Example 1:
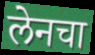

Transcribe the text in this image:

लेनचा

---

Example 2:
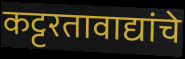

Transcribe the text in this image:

कट्टरतावाद्यांचे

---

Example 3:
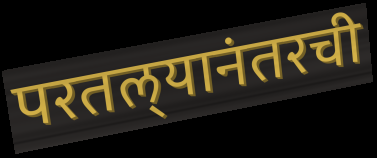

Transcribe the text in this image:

परतल्यानंतरची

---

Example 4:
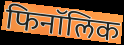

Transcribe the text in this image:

फिनॉलिक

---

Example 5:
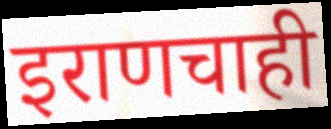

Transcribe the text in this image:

इराणचाही